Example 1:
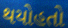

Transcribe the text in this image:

થયોહતો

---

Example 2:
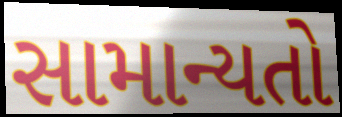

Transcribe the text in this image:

સામાન્યતો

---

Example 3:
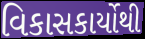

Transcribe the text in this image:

વિકાસકાર્યોથી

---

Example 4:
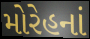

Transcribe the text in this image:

મોરેહનાં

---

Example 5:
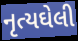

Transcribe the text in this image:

નૃત્યઘેલી